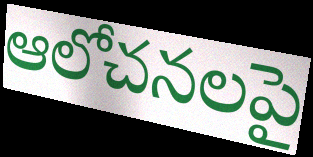
ఆలోచనలపై